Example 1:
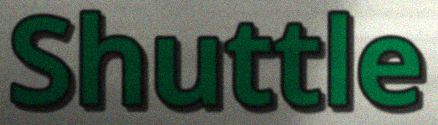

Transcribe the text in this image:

Shuttle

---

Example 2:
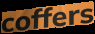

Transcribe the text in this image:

coffers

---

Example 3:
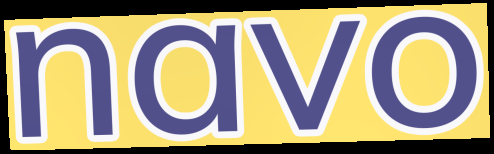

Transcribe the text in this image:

navo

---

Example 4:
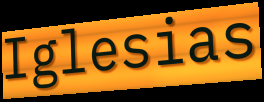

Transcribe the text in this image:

Iglesias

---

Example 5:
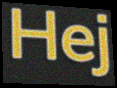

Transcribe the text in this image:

Hej